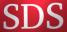
SDS